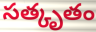
సత్కృతం